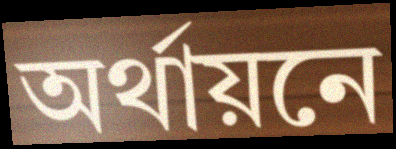
অর্থায়নে